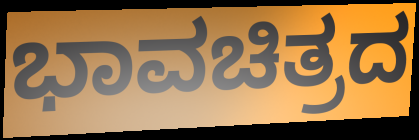
ಭಾವಚಿತ್ರದ